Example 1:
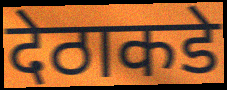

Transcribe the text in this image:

देठाकडे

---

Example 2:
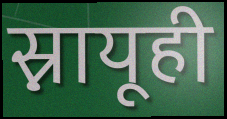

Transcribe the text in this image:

स्नायूही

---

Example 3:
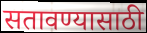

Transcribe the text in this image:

सतावण्यासाठी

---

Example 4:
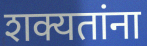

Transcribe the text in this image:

शक्यतांना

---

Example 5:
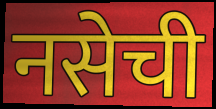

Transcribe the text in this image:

नसेची